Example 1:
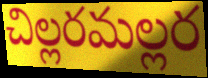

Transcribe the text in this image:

చిల్లరమల్లర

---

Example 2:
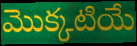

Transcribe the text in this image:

మొక్కటియే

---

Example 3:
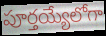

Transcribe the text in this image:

పూర్తయ్యేలోగా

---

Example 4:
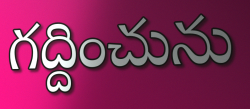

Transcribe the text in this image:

గద్దించును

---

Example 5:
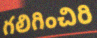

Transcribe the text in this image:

గలిగించిరి